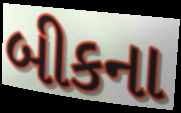
બીકના